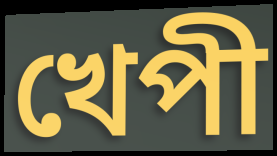
খেপী